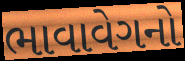
ભાવાવેગનો